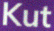
Kut